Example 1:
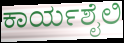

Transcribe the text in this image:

ಕಾರ್ಯಶೈಲಿ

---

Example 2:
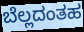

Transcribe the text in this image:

ಬೆಲ್ಲದಂತಹ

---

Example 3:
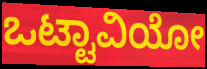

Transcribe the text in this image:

ಒಟ್ಟಾವಿಯೋ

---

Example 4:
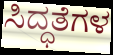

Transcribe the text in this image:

ಸಿದ್ಧತೆಗಳ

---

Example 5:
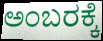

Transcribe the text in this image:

ಅಂಬರಕ್ಕೆ